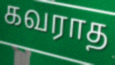
கவராத